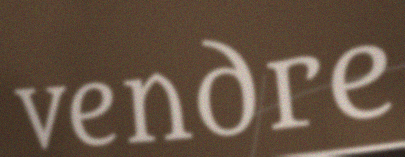
vendre